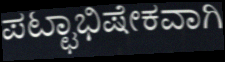
ಪಟ್ಟಾಭಿಷೇಕವಾಗಿ